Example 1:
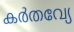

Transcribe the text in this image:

കർതവ്യേ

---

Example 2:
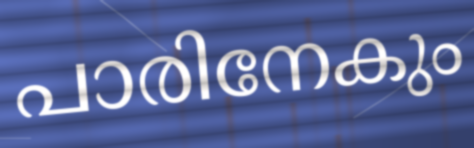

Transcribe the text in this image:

പാരിനേകും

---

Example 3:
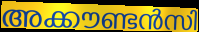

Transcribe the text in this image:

അക്കൗണ്ടൻസി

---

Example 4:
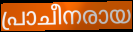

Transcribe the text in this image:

പ്രാചീനരായ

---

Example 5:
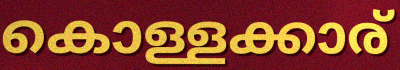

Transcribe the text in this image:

കൊള്ളക്കാര്